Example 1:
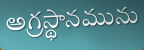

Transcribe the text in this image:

అగ్రస్థానమును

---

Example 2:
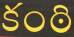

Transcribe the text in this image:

కంఠి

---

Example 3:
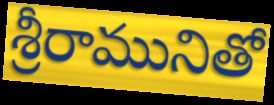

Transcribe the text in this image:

శ్రీరామునితో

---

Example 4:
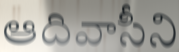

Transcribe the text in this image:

ఆదివాసీని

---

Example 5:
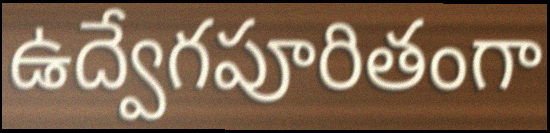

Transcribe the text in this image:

ఉద్వేగపూరితంగా